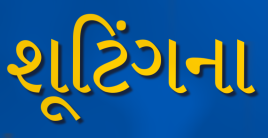
શૂટિંગના